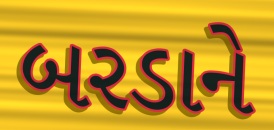
બરડાને